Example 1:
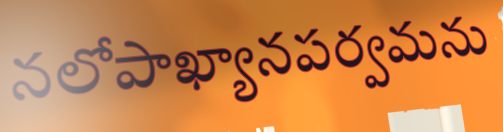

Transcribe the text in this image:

నలోపాఖ్యానపర్వమను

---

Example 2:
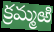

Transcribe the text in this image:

క్రమ్మఱి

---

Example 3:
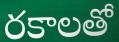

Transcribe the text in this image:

రకాలతో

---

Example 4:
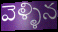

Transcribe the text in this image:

వెళ్ళిన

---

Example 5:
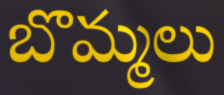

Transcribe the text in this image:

బొమ్మలు